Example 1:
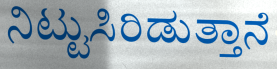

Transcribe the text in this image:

ನಿಟ್ಟುಸಿರಿಡುತ್ತಾನೆ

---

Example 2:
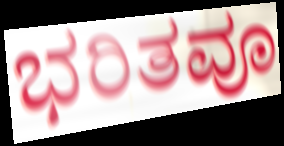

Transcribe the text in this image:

ಭರಿತವೂ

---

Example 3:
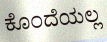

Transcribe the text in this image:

ಕೊಂದೆಯಲ್ಲ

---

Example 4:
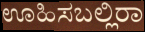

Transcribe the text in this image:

ಊಹಿಸಬಲ್ಲಿರಾ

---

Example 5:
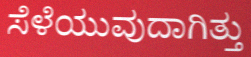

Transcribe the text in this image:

ಸೆಳೆಯುವುದಾಗಿತ್ತು